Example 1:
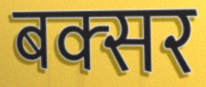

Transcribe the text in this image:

बक्‍सर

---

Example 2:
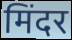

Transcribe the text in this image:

मिंदर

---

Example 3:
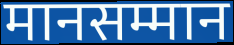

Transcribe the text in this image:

मानसम्मान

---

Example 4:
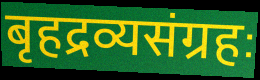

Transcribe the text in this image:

बृहद्रव्यसंग्रहः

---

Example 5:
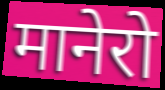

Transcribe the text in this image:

मानेरो